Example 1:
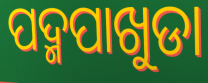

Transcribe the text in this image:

ପଦ୍ମପାଖୁଡା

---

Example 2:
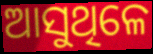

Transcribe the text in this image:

ଆସୁଥିଳେ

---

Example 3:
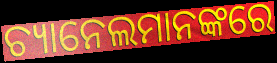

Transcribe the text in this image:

ଚ୍ୟାନେଲମାନଙ୍କରେ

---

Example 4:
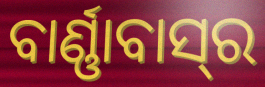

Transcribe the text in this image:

ବାର୍ଣ୍ଣାବାସ୍‌ର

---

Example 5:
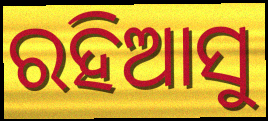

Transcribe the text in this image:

ରହିଆସୁ